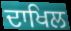
ਦਾਖਿਲ